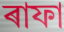
ৰাফা